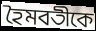
হৈমবতীকে